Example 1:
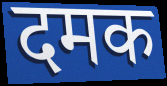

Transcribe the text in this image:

दमक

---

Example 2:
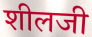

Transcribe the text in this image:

शीलजी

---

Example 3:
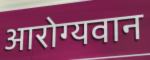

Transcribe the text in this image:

आरोग्यवान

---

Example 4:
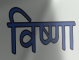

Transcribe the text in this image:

विष्णा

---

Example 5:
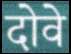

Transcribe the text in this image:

दोवे